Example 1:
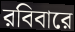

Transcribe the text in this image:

রবিবারে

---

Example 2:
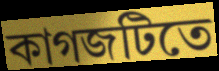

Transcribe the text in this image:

কাগজটিতে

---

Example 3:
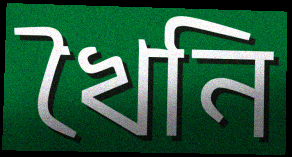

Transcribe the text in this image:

খৈনি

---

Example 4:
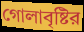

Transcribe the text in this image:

গোলাবৃষ্টির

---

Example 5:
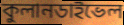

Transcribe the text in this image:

কুলানডাইভেল